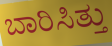
ಬಾರಿಸಿತ್ತು